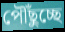
পৌঁছুচ্ছে